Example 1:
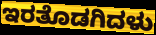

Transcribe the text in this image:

ಇರತೊಡಗಿದಳು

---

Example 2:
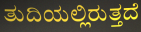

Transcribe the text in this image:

ತುದಿಯಲ್ಲಿರುತ್ತದೆ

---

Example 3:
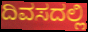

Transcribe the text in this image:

ದಿವಸದಲ್ಲಿ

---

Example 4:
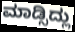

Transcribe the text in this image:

ಮಾಡ್ಸಿದ್ಲು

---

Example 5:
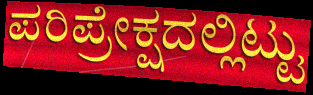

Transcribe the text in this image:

ಪರಿಪ್ರೇಕ್ಷದಲ್ಲಿಟ್ಟು